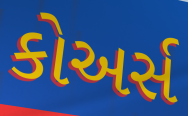
કોઅર્સ